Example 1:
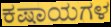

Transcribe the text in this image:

ಕಷಾಯಗಳ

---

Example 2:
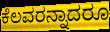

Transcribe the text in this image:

ಕೆಲವರನ್ನಾದರೂ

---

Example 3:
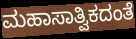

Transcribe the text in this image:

ಮಹಾಸಾತ್ವಿಕದಂತೆ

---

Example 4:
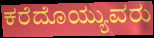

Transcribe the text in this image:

ಕರೆದೊಯ್ಯುವರು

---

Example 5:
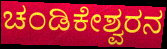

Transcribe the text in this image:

ಚಂಡಿಕೇಶ್ವರನ